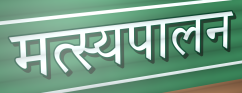
मत्स्यपालन